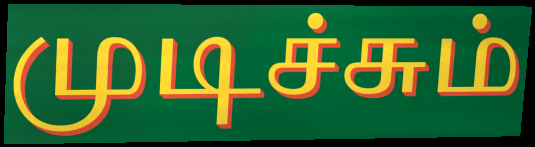
முடிச்சும்